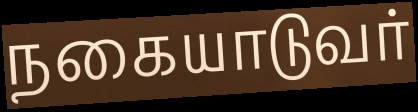
நகையாடுவர்